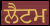
ਲੈਟਮ